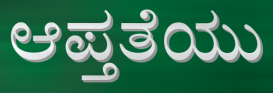
ಆಪ್ತತೆಯು